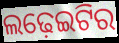
ଲଢ଼େଇଟିର